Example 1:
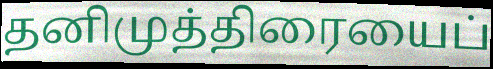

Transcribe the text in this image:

தனிமுத்திரையைப்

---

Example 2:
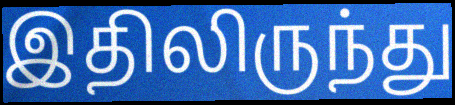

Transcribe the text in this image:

இதிலிருந்து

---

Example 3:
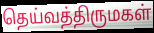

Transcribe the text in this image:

தெய்வத்திருமகள்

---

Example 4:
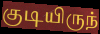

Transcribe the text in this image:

குடியிருந்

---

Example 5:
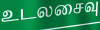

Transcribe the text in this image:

உடலசைவு